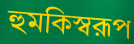
হুমকিস্বরূপ